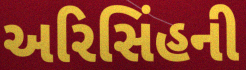
અરિસિંહની